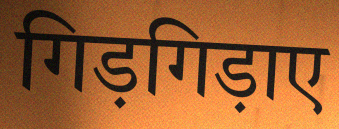
गिड़गिड़ाए